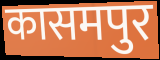
कासमपुर